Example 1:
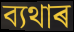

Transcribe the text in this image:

ব্যথাৰ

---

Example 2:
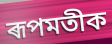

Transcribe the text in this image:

ৰূপমতীক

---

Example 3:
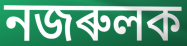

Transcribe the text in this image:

নজৰুলক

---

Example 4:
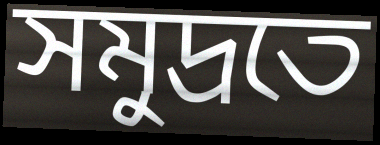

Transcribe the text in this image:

সমুদ্ৰতে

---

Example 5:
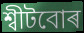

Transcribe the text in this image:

শ্বীটবোৰ